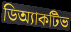
ডিঅ্যাকটিভ